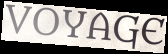
VOYAGE